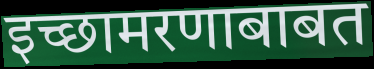
इच्छामरणाबाबत